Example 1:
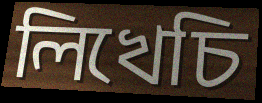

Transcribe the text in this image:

লিখেচি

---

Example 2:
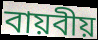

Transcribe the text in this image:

বায়বীয়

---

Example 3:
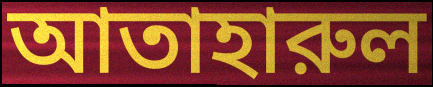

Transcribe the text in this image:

আতাহারুল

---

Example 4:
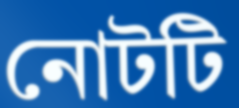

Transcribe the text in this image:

নোটটি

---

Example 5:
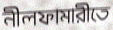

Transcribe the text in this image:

নীলফামারীতে